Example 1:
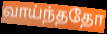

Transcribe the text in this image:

வாய்ந்ததோ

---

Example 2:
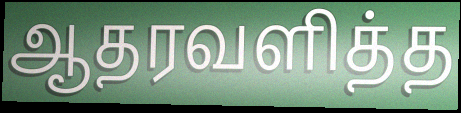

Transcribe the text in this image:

ஆதரவளித்த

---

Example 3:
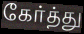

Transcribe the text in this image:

கேர்த்து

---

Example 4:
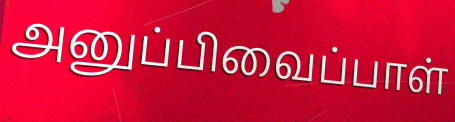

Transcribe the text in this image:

அனுப்பிவைப்பாள்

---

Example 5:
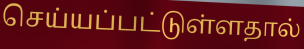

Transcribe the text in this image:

செய்யப்பட்டுள்ளதால்